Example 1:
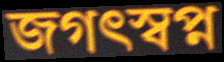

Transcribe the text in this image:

জগৎস্বপ্ন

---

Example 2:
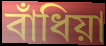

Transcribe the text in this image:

বাঁধিয়া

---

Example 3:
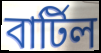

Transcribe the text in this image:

বার্টিল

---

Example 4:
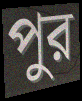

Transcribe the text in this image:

পুর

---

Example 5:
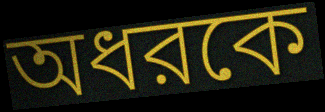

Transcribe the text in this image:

অধরকে